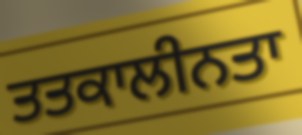
ਤਤਕਾਲੀਨਤਾ